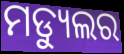
ମଡ୍ୟୁଲର